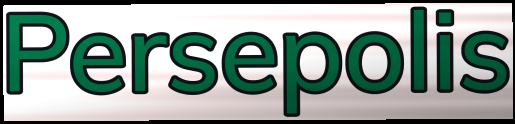
Persepolis